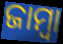
ଜାମ୍ବା